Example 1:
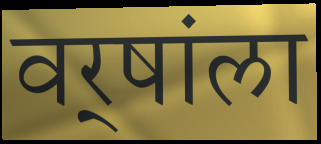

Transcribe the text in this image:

वर्षांला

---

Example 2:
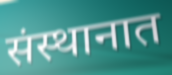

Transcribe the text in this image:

संस्थानात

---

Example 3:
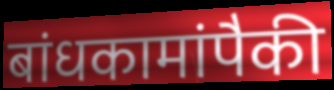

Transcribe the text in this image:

बांधकामांपैकी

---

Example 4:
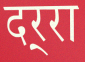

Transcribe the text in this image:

दर्रा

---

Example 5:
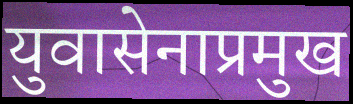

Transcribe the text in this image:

युवासेनाप्रमुख